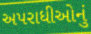
અપરાધીઓનું